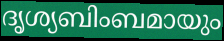
ദൃശ്യബിംബമായും